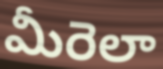
మీరెలా